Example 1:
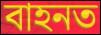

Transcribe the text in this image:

বাহনত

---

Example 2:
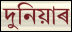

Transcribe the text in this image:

দুনিয়াৰ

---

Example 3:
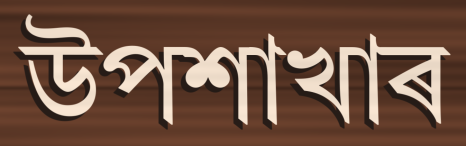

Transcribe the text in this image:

উপশাখাৰ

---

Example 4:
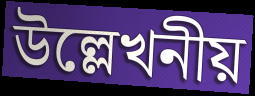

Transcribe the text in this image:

উল্লেখনীয়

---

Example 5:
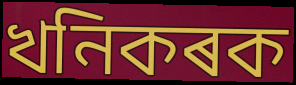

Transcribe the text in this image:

খনিকৰক